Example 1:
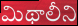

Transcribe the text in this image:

మిథాలీని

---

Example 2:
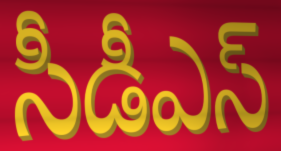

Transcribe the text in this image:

సీడీఎస్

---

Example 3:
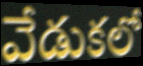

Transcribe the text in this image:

వేడుకలో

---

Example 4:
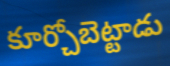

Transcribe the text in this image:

కూర్చోబెట్టాడు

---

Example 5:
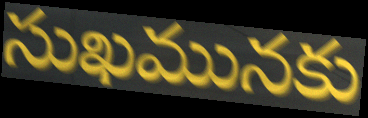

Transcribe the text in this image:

సుఖమునకు